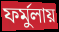
ফর্মুলায়